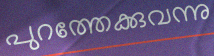
പുറത്തേക്കുവന്നു